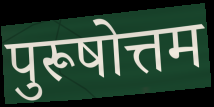
पुरूषोत्तम